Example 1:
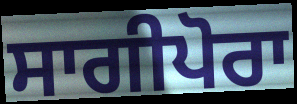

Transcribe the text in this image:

ਸਾਗੀਪੋਰਾ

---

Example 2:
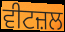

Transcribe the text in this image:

ਵੀਟਜ਼ਲ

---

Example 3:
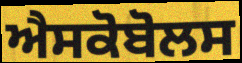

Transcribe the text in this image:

ਐਸਕੋਬੋਲਸ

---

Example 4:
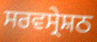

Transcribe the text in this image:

ਸਰਵਸ੍ਰੇਸ਼ਠ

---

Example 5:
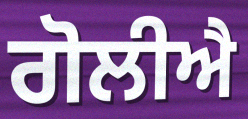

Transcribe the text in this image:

ਗੋਲੀਐ